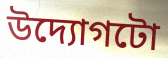
উদ্যোগটো